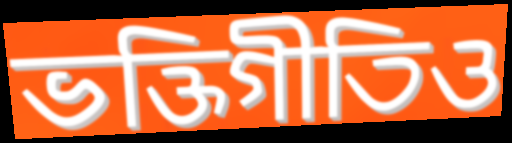
ভক্তিগীতিও